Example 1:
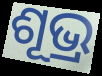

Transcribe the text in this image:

ଶୂଭ୍ର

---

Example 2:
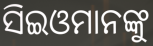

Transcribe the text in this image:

ସିଇଓମାନଙ୍କୁ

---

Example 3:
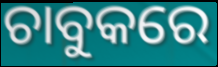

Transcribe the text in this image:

ଚାବୁକରେ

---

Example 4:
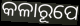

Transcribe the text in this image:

କଳାରୂପେ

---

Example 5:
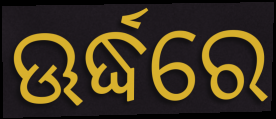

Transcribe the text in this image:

ଊର୍ଦ୍ଧରେ